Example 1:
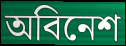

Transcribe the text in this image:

অবিনেশ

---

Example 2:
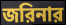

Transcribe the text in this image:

জরিনার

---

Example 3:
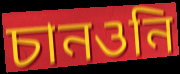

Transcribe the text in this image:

চানওনি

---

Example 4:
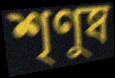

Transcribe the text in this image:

শৃণুষ্ব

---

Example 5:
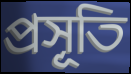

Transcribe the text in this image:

প্রসূতি